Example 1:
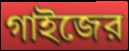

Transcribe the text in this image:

গাইজের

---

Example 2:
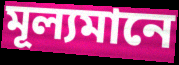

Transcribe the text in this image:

মূল্যমানে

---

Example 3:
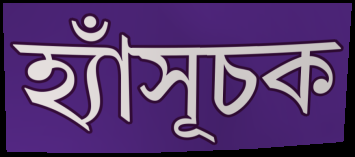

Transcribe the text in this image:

হ্যাঁসূচক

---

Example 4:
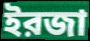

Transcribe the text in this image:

ইরজা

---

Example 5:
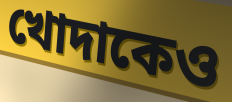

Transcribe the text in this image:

খোদাকেও